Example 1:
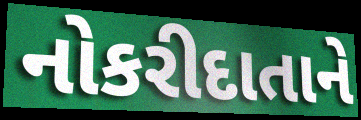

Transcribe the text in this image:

નોકરીદાતાને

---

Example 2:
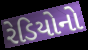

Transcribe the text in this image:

રેડિયોનો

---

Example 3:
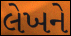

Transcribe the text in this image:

લેખને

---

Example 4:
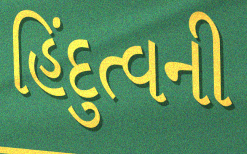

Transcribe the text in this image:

હિંદુત્વની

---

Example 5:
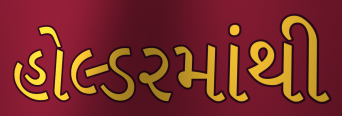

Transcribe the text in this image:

હોલ્ડરમાંથી